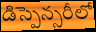
డిస్పెన్సరీలో